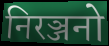
निरञ्जनो